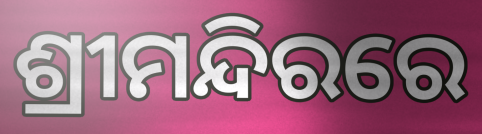
ଶ୍ରୀମନ୍ଦିରରେ